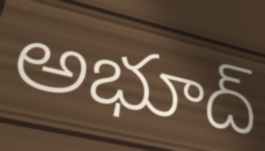
అభూద్